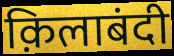
क़िलाबंदी